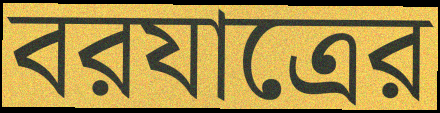
বরযাত্রের